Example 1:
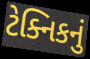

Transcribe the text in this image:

ટેક્નિકનું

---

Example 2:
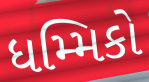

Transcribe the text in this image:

ધમ્મિકો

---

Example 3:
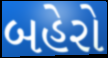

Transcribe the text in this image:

બહેરો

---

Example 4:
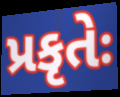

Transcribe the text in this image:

પ્રકૃતેઃ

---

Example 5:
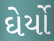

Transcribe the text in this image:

ઘેર્યો